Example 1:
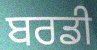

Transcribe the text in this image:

ਬਰਡੀ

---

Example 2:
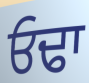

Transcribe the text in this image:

ਓਢਾ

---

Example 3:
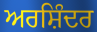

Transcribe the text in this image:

ਅਰਸ਼ਿੰਦਰ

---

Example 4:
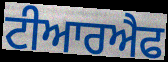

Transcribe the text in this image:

ਟੀਆਰਐਫ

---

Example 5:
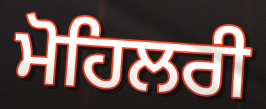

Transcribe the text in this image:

ਮੋਹਿਲਰੀ